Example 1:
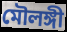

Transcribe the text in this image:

মৌলঙ্গী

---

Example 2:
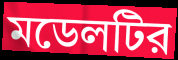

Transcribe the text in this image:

মডেলটির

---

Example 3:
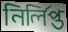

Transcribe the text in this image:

নির্লিপ্ত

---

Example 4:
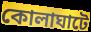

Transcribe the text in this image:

কোলাঘাটে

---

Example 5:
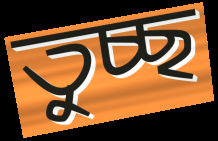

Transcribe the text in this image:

তুচ্ছ